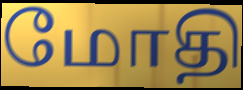
மோதி